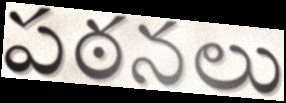
పఠనలు